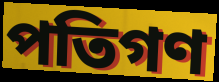
পতিগণ